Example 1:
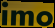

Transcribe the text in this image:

imo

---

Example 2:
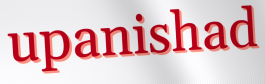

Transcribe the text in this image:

upanishad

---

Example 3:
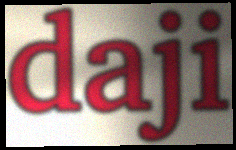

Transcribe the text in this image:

daji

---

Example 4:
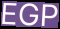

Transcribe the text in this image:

EGP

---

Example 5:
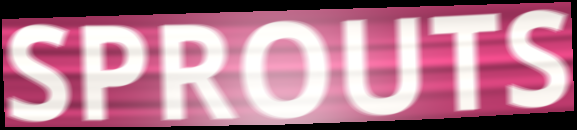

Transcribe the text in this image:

SPROUTS